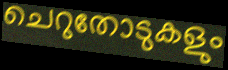
ചെറുതോടുകളും